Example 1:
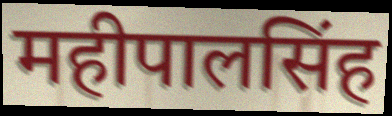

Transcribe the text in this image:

महीपालसिंह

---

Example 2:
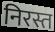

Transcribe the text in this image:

निरस्त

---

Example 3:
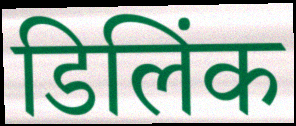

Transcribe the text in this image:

डिलिंक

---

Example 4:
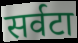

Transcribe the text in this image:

सर्वटा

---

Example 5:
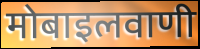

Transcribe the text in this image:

मोबाइलवाणी